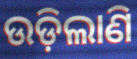
ଉଡ଼ିଲାଣି